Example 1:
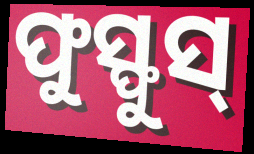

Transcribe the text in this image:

ଫୁସ୍ଫୁସ୍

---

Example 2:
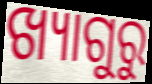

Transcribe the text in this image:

ଖ୍ୟାଗୁରୁ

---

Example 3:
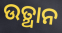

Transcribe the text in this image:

ଉତ୍ଥାନ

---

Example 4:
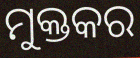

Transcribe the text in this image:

ମୁକ୍ତକର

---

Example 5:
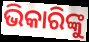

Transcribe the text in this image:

ଭିକାରିଙ୍କୁ